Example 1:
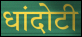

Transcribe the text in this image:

धांदोटी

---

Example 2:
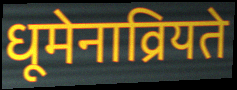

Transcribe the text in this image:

धूमेनाव्रियते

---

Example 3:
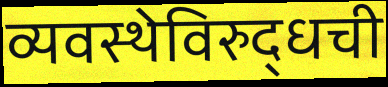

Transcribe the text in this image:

व्यवस्थेविरुद्धची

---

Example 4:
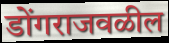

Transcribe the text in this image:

डोंगराजवळील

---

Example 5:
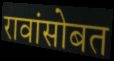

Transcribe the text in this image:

रावांसोबत